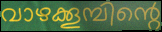
വാഴക്കൂമ്പിന്റെ